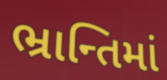
ભ્રાન્તિમાં